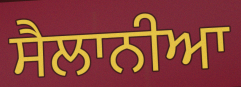
ਸੈਲਾਨੀਆ